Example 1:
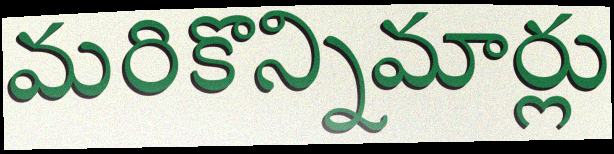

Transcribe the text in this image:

మరికొన్నిమార్లు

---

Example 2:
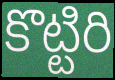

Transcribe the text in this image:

కొట్టిరి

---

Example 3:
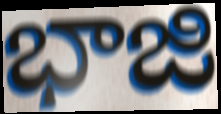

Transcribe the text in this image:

భాజి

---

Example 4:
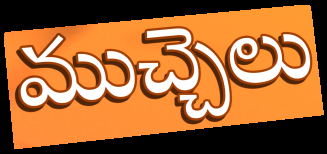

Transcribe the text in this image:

ముచ్చెలు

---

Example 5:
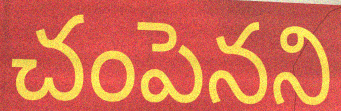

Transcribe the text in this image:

చంపెనని